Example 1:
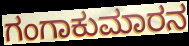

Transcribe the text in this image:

ಗಂಗಾಕುಮಾರನ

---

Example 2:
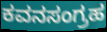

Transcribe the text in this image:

ಕವನಸಂಗ್ರಹ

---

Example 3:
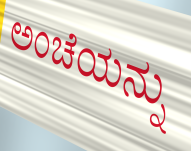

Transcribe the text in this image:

ಅಂಚೆಯನ್ನು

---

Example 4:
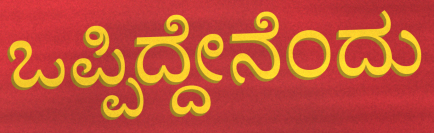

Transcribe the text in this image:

ಒಪ್ಪಿದ್ದೇನೆಂದು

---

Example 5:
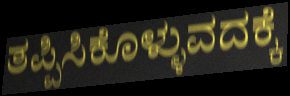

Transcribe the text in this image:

ತಪ್ಪಿಸಿಕೊಳ್ಳುವದಕ್ಕೆ